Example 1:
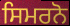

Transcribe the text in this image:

ਸਿਮਰਨੋ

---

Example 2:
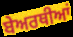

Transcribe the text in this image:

ਬੇਅਰਥੀਆਂ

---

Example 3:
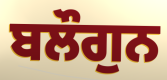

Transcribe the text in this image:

ਬਲੌਗੁਨ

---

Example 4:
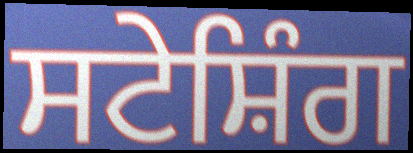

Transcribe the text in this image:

ਸਟੇਸ਼ਿੰਗ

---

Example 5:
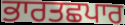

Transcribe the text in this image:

ਭਾਰਤਛਪਾਰ